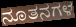
ನೂತನಗಳ